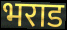
भराड